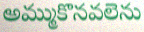
అమ్ముకొనవలెను